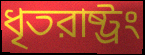
ধৃতরাষ্ট্রং